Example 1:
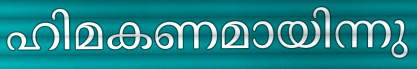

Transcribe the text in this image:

ഹിമകണമായിന്നു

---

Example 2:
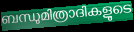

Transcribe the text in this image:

ബന്ധുമിത്രാദികളുടെ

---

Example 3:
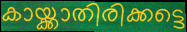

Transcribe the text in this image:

കായ്ക്കാതിരിക്കട്ടെ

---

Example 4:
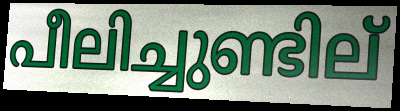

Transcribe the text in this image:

പീലിച്ചുണ്ടില്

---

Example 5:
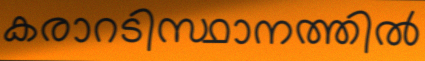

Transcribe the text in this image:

കരാറടിസ്ഥാനത്തിൽ